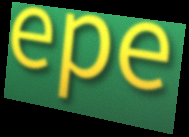
epe